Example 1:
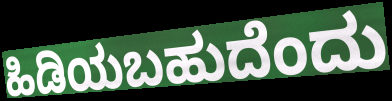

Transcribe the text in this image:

ಹಿಡಿಯಬಹುದೆಂದು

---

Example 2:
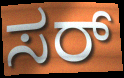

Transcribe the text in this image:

ಸರ್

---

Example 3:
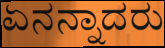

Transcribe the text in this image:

ಏನನ್ನಾದರು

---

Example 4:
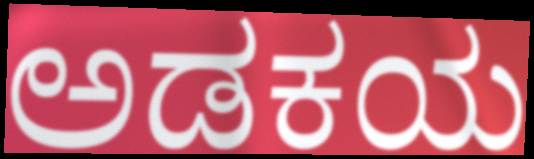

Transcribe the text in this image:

ಅಡಕಯ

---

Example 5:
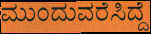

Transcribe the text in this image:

ಮುಂದುವರೆಸಿದ್ದೆ